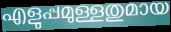
എളുപ്പമുള്ളതുമായ